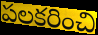
పలకరించి